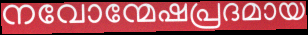
നവോന്മേഷപ്രദമായ